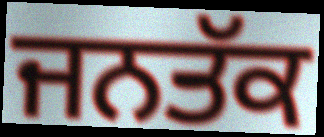
ਜਨਤੱਕ